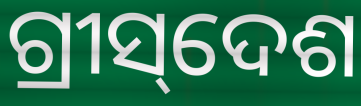
ଗ୍ରୀସ୍‌ଦେଶ